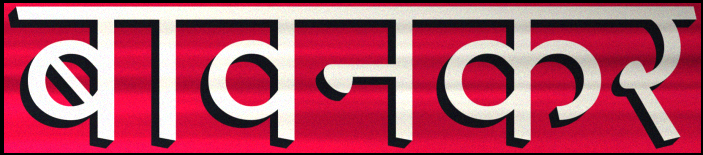
बावनकर